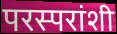
परस्परांशी